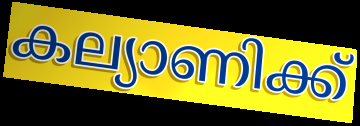
കല്യാണിക്ക്